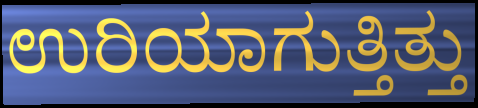
ಉರಿಯಾಗುತ್ತಿತ್ತು